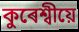
কুৰেশ্বীয়ে